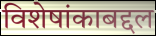
विशेषांकाबद्दल